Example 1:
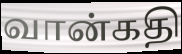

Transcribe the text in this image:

வான்கதி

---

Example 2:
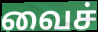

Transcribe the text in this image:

வைச்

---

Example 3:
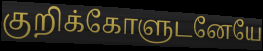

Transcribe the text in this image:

குறிக்கோளுடனேயே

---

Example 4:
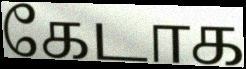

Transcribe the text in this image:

கேடாக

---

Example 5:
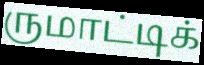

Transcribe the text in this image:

ருமாட்டிக்